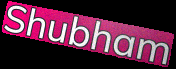
Shubham